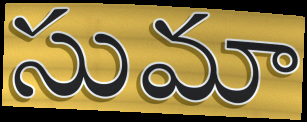
సుమా